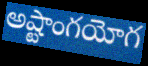
అష్టాంగయోగ